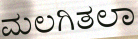
ಮಲಗಿತಲಾ